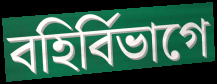
বহির্বিভাগে